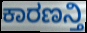
ಕಾರಣನ್ತಿ